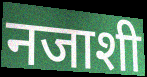
नजाशी